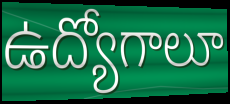
ఉద్యోగాలూ